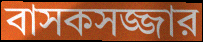
বাসকসজ্জার